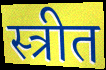
स्त्रीत